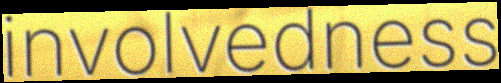
involvedness